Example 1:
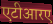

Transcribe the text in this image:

एटीआरए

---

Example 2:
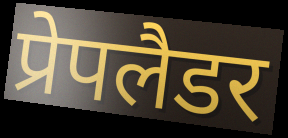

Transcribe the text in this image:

प्रेपलैडर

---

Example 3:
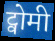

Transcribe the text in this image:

ट्वोमी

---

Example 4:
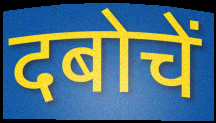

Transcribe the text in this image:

दबोचें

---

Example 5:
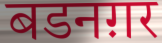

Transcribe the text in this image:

बडनग़र